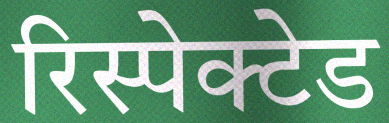
रिस्पेक्टेड